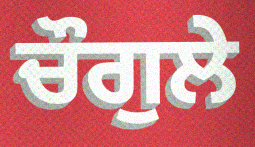
ਚੌਗੁਲੇ